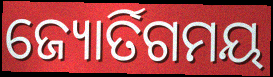
ଜ୍ୟୋର୍ତିଗମୟ